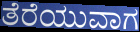
ತೆರೆಯುವಾಗ